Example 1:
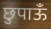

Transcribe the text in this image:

छुपाऊँ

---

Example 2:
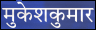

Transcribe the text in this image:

मुकेशकुमार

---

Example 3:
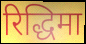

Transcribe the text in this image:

रिद्धिमा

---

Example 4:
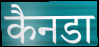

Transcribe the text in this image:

कैनडा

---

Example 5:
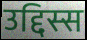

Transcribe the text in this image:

उद्दिस्स